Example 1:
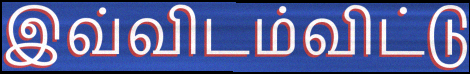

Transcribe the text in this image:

இவ்விடம்விட்டு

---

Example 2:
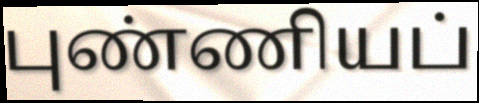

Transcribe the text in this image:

புண்ணியப்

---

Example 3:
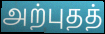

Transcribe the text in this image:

அற்புதத்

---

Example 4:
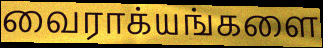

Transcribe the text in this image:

வைராக்யங்களை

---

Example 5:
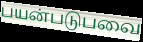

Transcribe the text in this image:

பயன்படுபவை